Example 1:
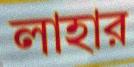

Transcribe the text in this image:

লাহার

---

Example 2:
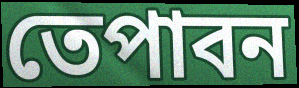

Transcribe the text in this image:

তেপাবন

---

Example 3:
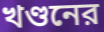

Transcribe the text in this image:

খণ্ডনের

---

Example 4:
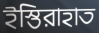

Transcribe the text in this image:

ইস্তিরাহাত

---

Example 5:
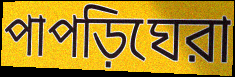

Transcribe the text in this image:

পাপড়িঘেরা